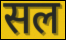
सल